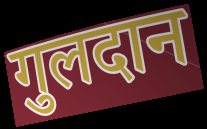
गुलदान